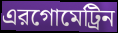
এরগোমেট্রিন